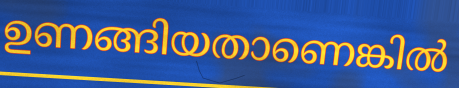
ഉണങ്ങിയതാണെങ്കിൽ